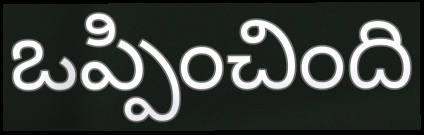
ఒప్పించింది